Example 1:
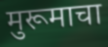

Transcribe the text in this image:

मुरूमाचा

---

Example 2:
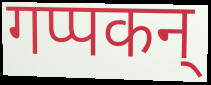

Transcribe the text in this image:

गप्पकन्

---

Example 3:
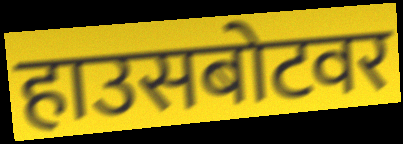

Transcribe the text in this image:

हाउसबोटवर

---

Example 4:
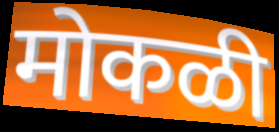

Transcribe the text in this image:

मोकळी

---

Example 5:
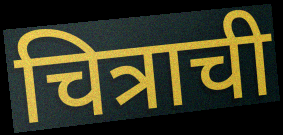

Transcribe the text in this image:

चित्राची